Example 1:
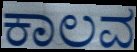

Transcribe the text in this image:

ಕಾಲವ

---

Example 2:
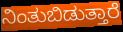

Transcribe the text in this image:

ನಿಂತುಬಿಡುತ್ತಾರೆ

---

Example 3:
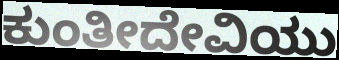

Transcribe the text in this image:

ಕುಂತೀದೇವಿಯು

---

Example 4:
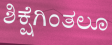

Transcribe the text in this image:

ಶಿಕ್ಷೆಗಿಂತಲೂ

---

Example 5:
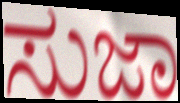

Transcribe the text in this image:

ಸುಜಾ